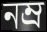
নম্ৰ